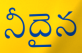
నీదైన